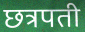
छत्रपती